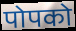
पोपको